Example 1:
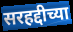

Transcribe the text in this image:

सरहद्दीच्या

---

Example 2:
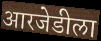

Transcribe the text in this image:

आरजेडीला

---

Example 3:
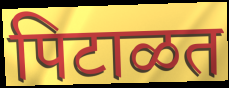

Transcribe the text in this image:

पिटाळत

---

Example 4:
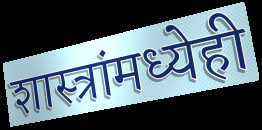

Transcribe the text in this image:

शास्त्रांमध्येही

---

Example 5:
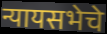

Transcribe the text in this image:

न्यायसभेचे